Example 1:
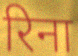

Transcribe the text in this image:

रिना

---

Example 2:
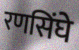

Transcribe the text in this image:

रणसिंघे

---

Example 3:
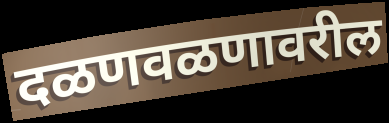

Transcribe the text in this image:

दळणवळणावरील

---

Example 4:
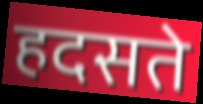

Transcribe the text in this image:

हदसते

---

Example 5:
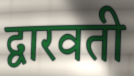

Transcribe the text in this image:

द्वारवती